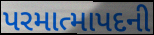
પરમાત્માપદની